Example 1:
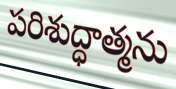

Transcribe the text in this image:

పరిశుద్ధాత్మను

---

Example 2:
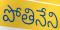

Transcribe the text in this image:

పోతినేని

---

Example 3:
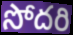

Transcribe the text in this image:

సోదరి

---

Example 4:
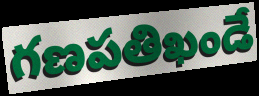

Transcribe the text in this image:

గణపతిఖండే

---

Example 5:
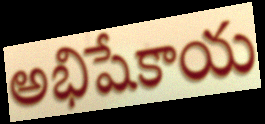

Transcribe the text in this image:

అభిషేకాయ